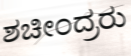
ಶಚೀಂದ್ರರು